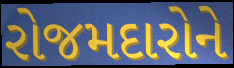
રોજમદારોને